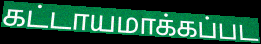
கட்டாயமாக்கப்பட